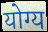
योग्य